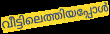
വീട്ടിലെത്തിയപ്പോൾ